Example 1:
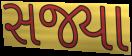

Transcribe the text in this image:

સજ્યા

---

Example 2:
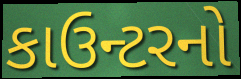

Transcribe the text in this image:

કાઉન્ટરનો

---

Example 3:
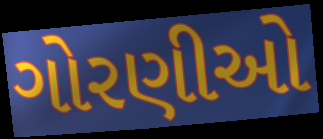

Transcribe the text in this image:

ગોરણીઓ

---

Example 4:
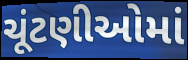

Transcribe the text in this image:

ચૂંટણીઓમાં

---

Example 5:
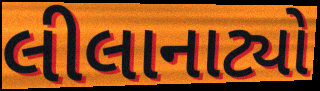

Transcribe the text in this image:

લીલાનાટ્યો